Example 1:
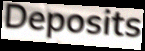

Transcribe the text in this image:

Deposits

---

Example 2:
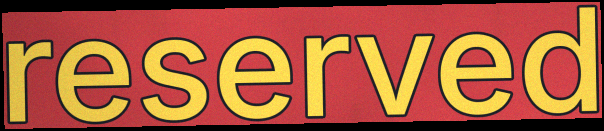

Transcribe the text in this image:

reserved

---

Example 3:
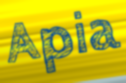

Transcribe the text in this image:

Apia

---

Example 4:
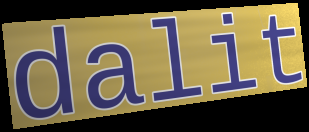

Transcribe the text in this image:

dalit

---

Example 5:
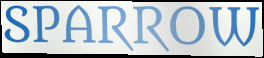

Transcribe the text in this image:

SPARROW